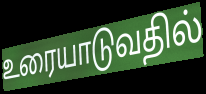
உரையாடுவதில்